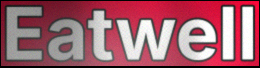
Eatwell